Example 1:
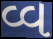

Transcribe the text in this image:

વ્વ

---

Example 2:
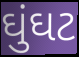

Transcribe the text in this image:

ઘુંઘટ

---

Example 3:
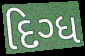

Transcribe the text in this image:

દિગ્ધ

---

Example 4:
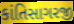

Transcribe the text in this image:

કાંતિસાગરજી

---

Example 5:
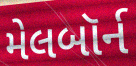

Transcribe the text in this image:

મેલબૉર્ન